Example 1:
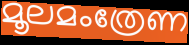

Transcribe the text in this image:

മൂലമംത്രേണ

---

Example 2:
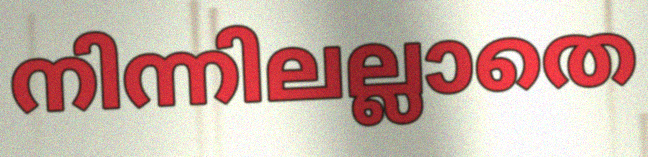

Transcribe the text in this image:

നിന്നിലല്ലാതെ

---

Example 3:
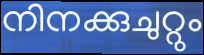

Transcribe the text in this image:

നിനക്കുചുറ്റും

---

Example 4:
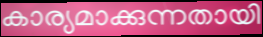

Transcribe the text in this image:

കാര്യമാക്കുന്നതായി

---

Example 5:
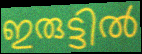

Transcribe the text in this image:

ഇരുട്ടിൽ